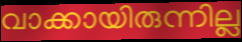
വാക്കായിരുന്നില്ല